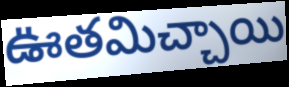
ఊతమిచ్చాయి